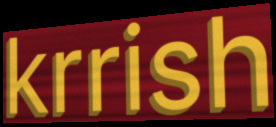
krrish